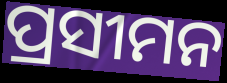
ପ୍ରସୀମନ